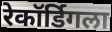
रेकॉर्डिगला